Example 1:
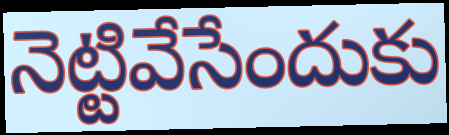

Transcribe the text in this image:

నెట్టివేసేందుకు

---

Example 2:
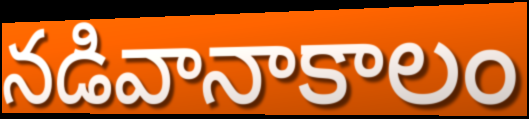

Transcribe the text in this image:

నడివానాకాలం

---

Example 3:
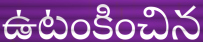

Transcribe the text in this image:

ఉటంకించిన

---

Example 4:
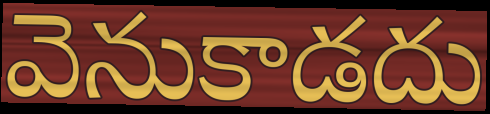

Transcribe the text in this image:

వెనుకాడదు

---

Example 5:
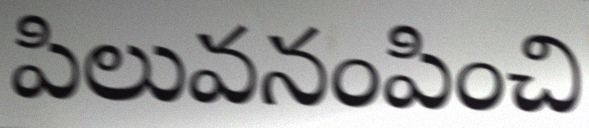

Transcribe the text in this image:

పిలువనంపించి